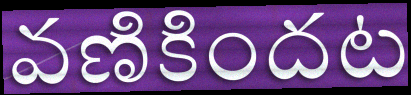
వణికిందట